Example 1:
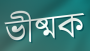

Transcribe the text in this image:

ভীষ্মক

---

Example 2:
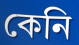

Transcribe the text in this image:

কেনি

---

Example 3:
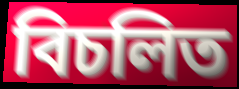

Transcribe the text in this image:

বিচলিত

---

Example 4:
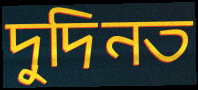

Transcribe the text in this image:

দুদিনত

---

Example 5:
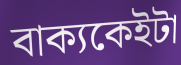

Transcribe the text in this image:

বাক্যকেইটা